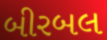
બીરબલ